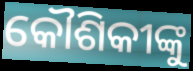
କୌଶିକୀଙ୍କୁ